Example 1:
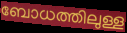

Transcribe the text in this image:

ബോധത്തിലുള്ള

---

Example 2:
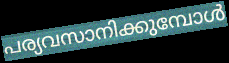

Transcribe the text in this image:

പര്യവസാനിക്കുമ്പോൾ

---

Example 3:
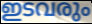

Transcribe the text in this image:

ഇടവരും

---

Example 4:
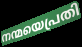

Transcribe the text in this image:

നന്മയെപ്രതി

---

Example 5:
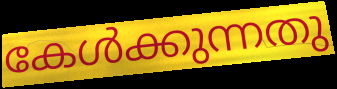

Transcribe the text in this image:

കേൾക്കുന്നതു